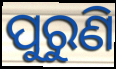
ପୁରୁଣି